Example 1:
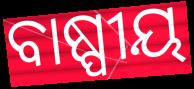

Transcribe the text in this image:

ବାଷ୍ପୀୟ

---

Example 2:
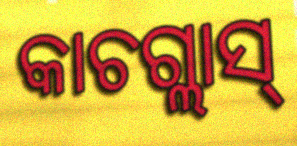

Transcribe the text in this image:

କାଚଗ୍ଲାସ୍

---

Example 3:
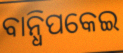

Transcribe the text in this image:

ବାନ୍ଧିପକେଇ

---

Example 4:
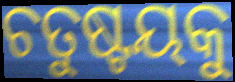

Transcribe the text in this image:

ଚତୁଷ୍ଟୟକୁ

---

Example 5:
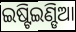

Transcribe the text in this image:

ଇଷ୍ଟିଇଣ୍ଡିଆ